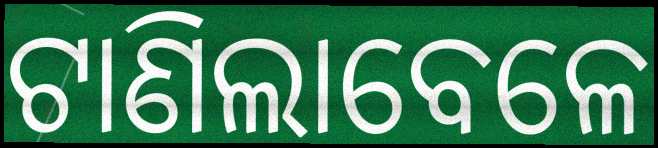
ଟାଣିଲାବେଳେ